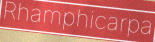
Rhamphicarpa